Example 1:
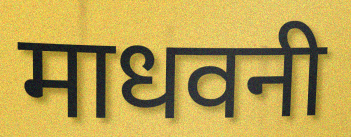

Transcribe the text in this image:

माधवनी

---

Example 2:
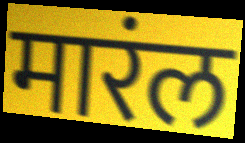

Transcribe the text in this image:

मारंल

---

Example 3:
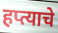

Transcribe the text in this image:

हप्त्याचे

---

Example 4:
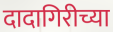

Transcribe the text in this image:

दादागिरीच्या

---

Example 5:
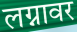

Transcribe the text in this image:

लग्नावर